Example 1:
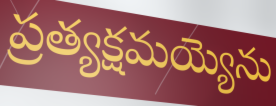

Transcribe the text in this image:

ప్రత్యక్షమయ్యెను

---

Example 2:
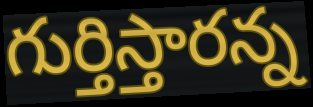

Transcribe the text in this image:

గుర్తిస్తారన్న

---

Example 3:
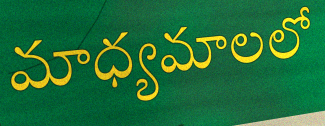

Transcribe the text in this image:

మాధ్యమాలలో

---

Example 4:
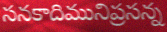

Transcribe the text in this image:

సనకాదిమునిప్రసన్న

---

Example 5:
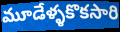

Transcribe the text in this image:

మూడేళ్ళకొకసారి